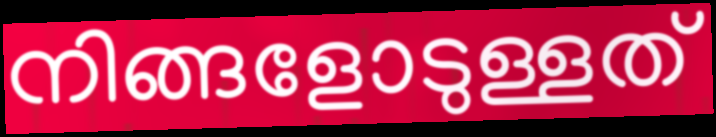
നിങ്ങളോടുള്ളത്